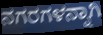
ನಗರಗಳನ್ನಾಗಿ